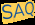
SAQ